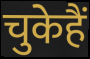
चुकेहैं